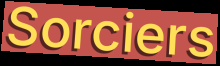
Sorciers